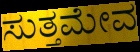
ಸುತ್ತಮೇವ